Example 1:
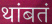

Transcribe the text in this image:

थांबतं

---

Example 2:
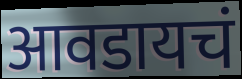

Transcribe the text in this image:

आवडायचं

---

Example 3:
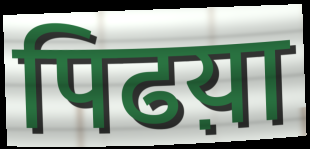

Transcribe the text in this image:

पिढय़ा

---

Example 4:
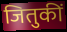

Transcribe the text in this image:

जितुकीं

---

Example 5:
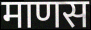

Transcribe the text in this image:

माणस